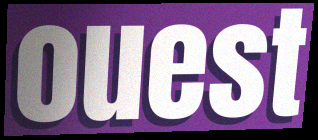
ouest